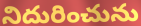
నిదురించును